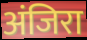
अंजिरा